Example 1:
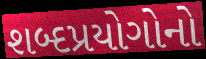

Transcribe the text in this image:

શબ્દપ્રયોગોનો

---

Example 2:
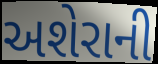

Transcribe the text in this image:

અશેરાની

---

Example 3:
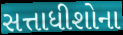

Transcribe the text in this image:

સત્તાધીશોના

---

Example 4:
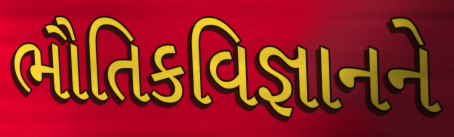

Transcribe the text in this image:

ભૌતિકવિજ્ઞાનને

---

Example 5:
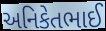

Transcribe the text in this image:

અનિકેતભાઈ